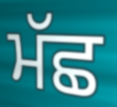
ਮੱਛ